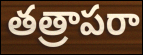
తత్రాపరా